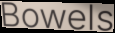
Bowels